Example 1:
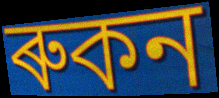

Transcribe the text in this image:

ৰুকন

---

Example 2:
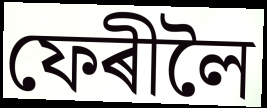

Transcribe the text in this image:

ফেৰীলৈ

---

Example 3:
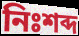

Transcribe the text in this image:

নিঃশব্দ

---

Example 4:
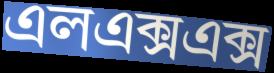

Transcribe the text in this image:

এলএক্সএক্স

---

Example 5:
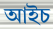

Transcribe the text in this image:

আইচ